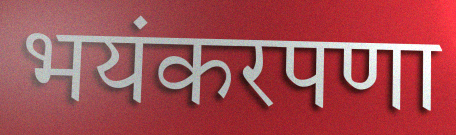
भयंकरपणा